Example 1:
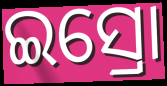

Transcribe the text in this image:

ଇସ୍ରୋ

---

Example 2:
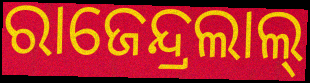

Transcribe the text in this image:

ରାଜେନ୍ଦ୍ରଲାଲ୍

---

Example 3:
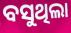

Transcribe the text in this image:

ବସୁଥିଲା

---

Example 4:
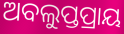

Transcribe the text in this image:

ଅବଲୁପ୍ତପ୍ରାୟ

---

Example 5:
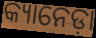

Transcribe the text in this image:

କ୍ୟାନେଡ଼ା